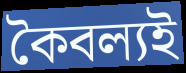
কৈবল্যই